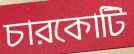
চারকোটি